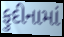
ફુદીનામાં